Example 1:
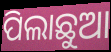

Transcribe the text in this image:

ପିଲାଛୁଆ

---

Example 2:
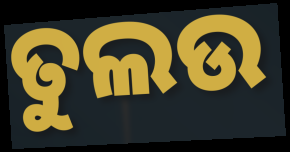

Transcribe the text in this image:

ତୁଲଉ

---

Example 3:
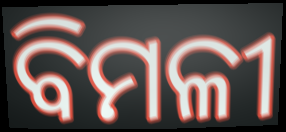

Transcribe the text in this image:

ବିମଳୀ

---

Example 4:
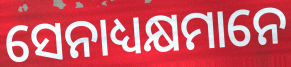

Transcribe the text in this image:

ସେନାଧ୍ୟକ୍ଷମାନେ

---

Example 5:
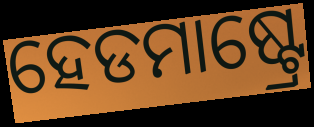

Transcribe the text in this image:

ହେଡମାଷ୍ଟ୍ରେ